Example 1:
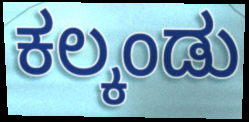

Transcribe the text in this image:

ಕಲ್ಕಂಡು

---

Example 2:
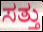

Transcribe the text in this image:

ಸತ್ತು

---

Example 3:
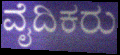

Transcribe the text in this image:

ವೈದಿಕರು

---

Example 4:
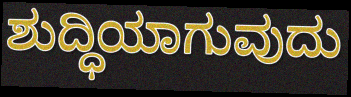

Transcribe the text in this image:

ಶುದ್ಧಿಯಾಗುವುದು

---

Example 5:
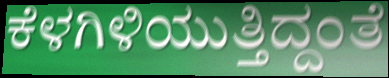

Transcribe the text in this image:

ಕೆಳಗಿಳಿಯುತ್ತಿದ್ದಂತೆ